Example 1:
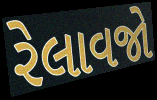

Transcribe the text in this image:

રેલાવજો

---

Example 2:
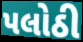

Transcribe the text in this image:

પલોઠી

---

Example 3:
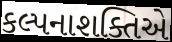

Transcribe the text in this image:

કલ્પનાશક્તિએ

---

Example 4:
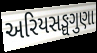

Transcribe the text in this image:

અરિયસઙ્ઘગુણા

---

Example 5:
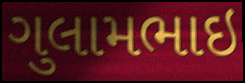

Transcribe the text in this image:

ગુલામભાઇ